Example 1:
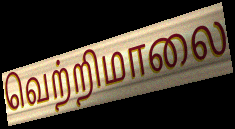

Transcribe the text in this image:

வெற்றிமாலை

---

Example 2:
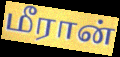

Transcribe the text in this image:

மீரான்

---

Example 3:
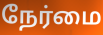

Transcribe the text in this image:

நேர்மை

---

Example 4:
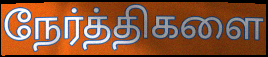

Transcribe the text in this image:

நேர்த்திகளை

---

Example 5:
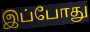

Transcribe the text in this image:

இப்போது